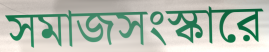
সমাজসংস্কারে